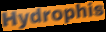
Hydrophis